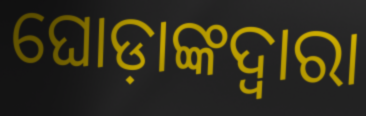
ଘୋଡ଼ାଙ୍କଦ୍ୱାରା